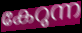
കേറുന്ന